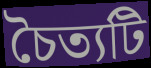
চৈত্যটি